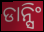
ଡାନ୍ସିଂ